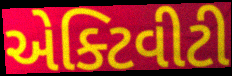
એક્ટિવીટી